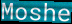
Moshe